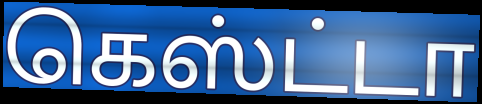
கெஸ்ட்டா